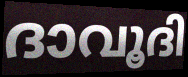
ദാവൂദി